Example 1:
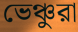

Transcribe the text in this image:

ভেঞ্চুরা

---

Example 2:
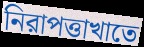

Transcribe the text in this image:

নিরাপত্তাখাতে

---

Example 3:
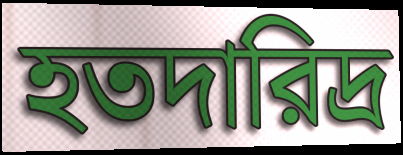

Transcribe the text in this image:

হতদারিদ্র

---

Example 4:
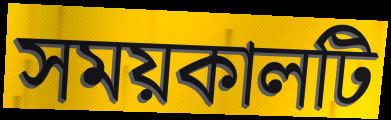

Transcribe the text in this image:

সময়কালটি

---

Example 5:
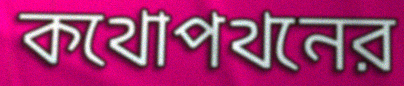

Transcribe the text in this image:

কথোপথনের